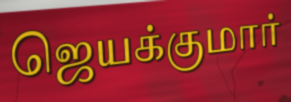
ஜெயக்குமார்